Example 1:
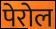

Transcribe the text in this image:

पेरोल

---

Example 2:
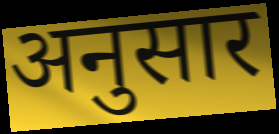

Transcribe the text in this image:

अनुसार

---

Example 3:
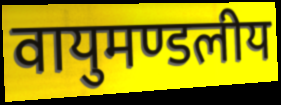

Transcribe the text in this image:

वायुमण्डलीय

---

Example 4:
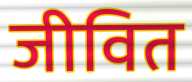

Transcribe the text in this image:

जीवित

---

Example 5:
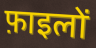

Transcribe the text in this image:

फ़ाइलों